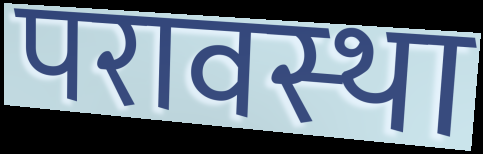
परावस्था